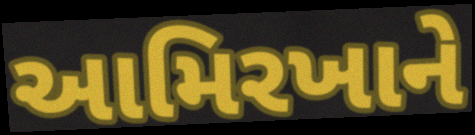
આમિરખાને